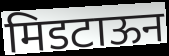
मिडटाऊन